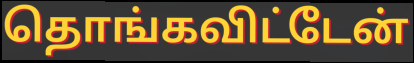
தொங்கவிட்டேன்